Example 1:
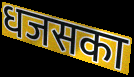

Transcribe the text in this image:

धजसका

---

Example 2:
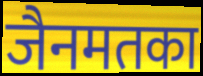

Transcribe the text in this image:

जैनमतका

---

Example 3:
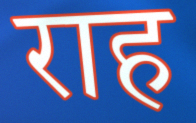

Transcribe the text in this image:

राह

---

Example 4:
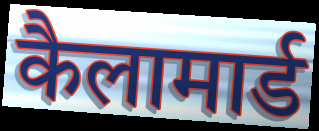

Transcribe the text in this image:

कैलामार्ड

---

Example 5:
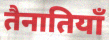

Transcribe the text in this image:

तैनातियाँ